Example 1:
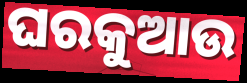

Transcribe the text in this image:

ଘରକୁଆଉ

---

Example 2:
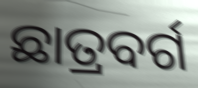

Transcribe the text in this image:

ଛାତ୍ରବର୍ଗ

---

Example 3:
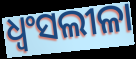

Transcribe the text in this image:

ଧ୍ୱଂସଲୀଳା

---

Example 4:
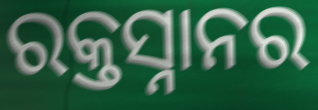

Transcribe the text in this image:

ରକ୍ତସ୍ନାନର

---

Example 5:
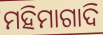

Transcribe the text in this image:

ମହିମାଗାଦି